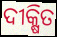
ଦୀକ୍ଷିତ